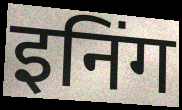
इनिंग